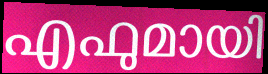
എഫുമായി